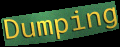
Dumping